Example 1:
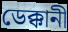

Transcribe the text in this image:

ডেক্কানী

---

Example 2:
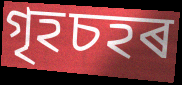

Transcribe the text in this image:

গৃহচহৰ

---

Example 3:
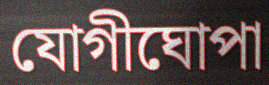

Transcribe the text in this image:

যোগীঘোপা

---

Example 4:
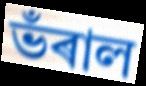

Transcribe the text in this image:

ভঁৰাল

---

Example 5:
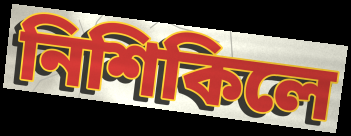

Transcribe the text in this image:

নিশিকিলে